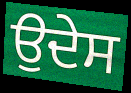
ਉਦੇਸ